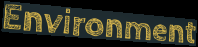
Environment